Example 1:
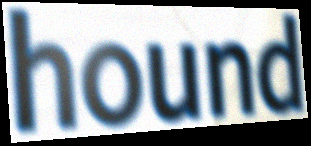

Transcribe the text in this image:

hound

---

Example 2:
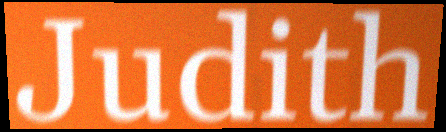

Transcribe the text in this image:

Judith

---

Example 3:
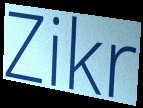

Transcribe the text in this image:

Zikr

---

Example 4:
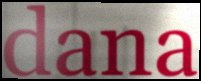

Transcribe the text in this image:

dana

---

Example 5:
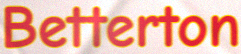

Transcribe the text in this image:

Betterton